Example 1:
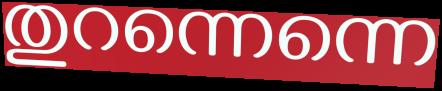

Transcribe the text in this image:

തുറന്നെന്നെ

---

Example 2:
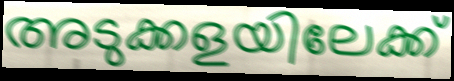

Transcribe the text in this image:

അടുക്കളയിലേക്ക്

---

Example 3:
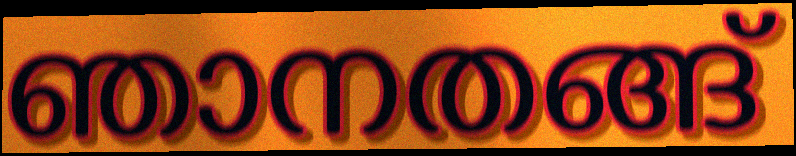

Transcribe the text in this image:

ഞാനതങ്ങ്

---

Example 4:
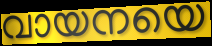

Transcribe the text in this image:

വായനയെ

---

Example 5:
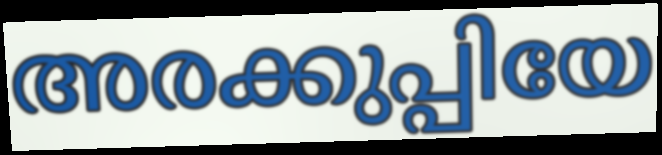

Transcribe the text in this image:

അരക്കുപ്പിയേ